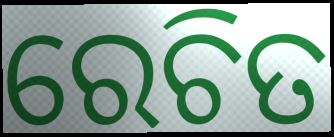
ରେଚିତ